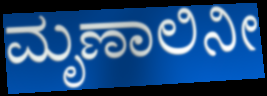
ಮೃಣಾಲಿನೀ